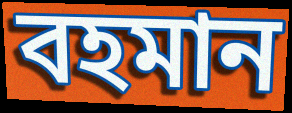
বহমান